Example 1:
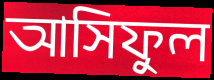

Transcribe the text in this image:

আসিফুল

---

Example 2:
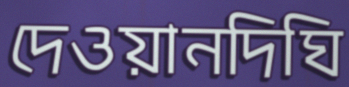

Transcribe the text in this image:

দেওয়ানদিঘি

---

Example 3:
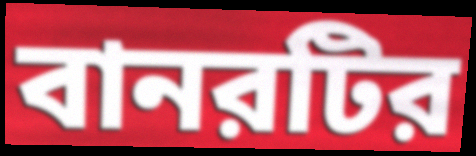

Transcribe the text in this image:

বানরটির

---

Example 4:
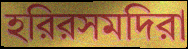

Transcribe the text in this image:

হরিরসমদিরা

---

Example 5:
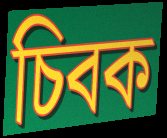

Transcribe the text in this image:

চিবক